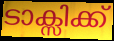
ടാക്സിക്ക്